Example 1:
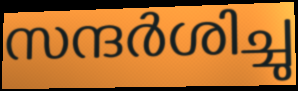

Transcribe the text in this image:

സന്ദർശിച്ചു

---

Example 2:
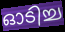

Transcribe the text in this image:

ഓടിച്ച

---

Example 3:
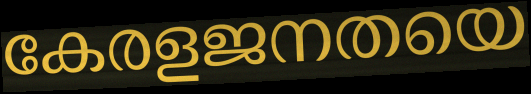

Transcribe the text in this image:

കേരളജനതയെ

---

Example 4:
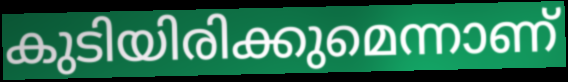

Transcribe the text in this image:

കുടിയിരിക്കുമെന്നാണ്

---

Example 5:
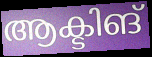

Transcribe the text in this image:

ആക്ടിങ്